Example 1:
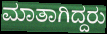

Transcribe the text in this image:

ಮಾತಾಗಿದ್ದರು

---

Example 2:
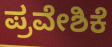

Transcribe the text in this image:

ಪ್ರವೇಶಿಕೆ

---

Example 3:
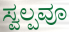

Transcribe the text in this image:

ಸ್ವಲ್ಪವೂ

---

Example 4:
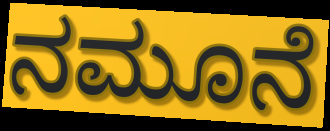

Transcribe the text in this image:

ನಮೂನೆ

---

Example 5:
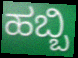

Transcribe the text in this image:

ಹಬ್ಬಿ